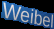
Weibel